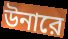
উনারে